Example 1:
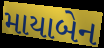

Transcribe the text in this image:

માયાબેન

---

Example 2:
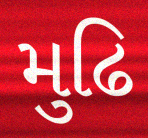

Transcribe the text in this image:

મુઢિ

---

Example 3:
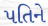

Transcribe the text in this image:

પતિને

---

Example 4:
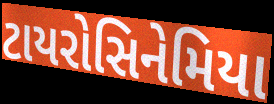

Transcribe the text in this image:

ટાયરોસિનેમિયા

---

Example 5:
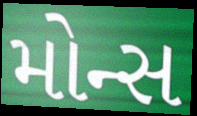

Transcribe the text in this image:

મોન્સ